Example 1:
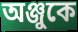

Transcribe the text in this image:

অঞ্জুকে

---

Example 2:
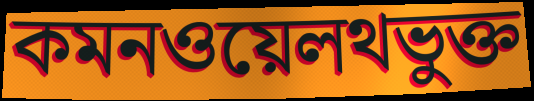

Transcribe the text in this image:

কমনওয়েলথভুক্ত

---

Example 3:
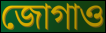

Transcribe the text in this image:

জোগাও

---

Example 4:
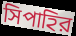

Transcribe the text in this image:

সিপাহির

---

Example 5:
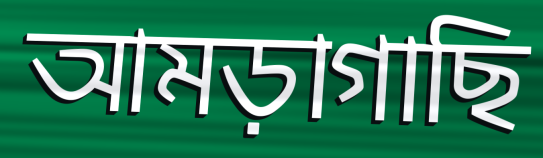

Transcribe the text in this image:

আমড়াগাছি